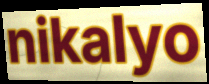
nikalyo